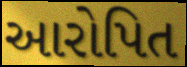
આરોપિત